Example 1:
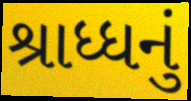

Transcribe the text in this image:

શ્રાધ્ધનું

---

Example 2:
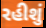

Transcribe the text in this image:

રહીશું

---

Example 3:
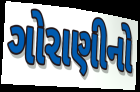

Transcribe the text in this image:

ગોરાણીનો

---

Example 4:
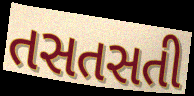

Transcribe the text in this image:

તસતસતી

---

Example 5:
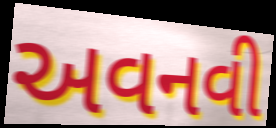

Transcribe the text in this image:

અવનવી